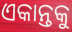
ଏକାନ୍ତକୁ